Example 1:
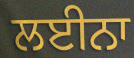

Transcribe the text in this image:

ਲਈਨਾ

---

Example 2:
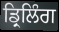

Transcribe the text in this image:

ਡ੍ਰਿਲਿੰਗ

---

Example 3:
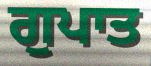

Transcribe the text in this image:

ਗੁਪਾਤ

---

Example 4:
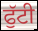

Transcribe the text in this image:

ਫੁੱਟੀ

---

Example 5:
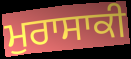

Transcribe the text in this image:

ਮੁਰਾਸਾਕੀ